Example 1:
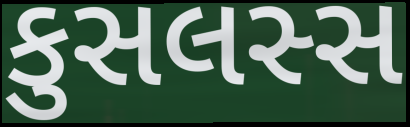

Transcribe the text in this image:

કુસલસ્સ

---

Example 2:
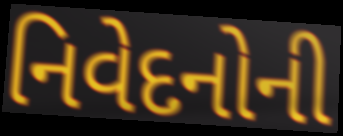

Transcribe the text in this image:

નિવેદનોની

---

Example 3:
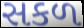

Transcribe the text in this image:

સકળ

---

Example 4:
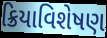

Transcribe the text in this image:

ક્રિયાવિશેષણ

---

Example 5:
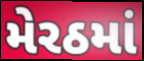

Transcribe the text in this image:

મેરઠમાં